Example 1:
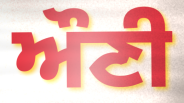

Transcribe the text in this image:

ਔਣੀ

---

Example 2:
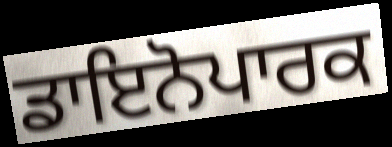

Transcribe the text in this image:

ਡਾਇਨੋਪਾਰਕ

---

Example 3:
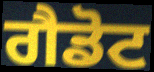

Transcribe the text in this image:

ਗੈਡੋਟ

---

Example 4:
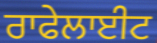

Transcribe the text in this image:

ਰਾਫੇਲਾਈਟ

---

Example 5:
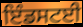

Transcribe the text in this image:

ਇੰਡਸਟਈ